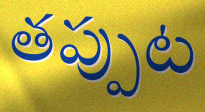
తప్పుట